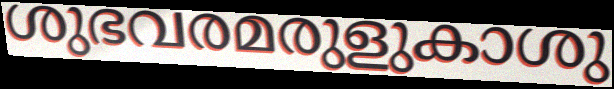
ശുഭവരമരുളുകാശു